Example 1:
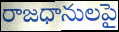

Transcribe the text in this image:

రాజధానులపై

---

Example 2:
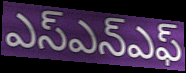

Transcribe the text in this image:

ఎస్ఎన్ఎఫ్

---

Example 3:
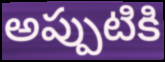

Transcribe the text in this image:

అప్పుటికి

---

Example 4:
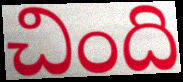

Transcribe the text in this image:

చింది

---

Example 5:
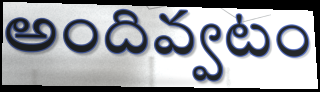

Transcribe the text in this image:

అందివ్వటం